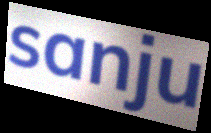
sanju